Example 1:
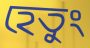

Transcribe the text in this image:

হেতুং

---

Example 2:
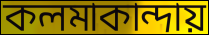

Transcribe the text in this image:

কলমাকান্দায়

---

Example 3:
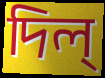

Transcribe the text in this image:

দিল্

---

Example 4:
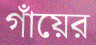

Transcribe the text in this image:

গাঁয়ের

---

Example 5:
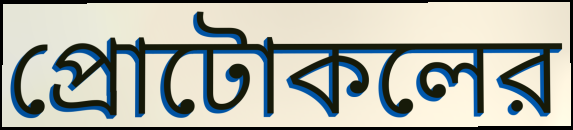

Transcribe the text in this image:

প্রোটোকলের